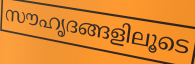
സൗഹൃദങ്ങളിലൂടെ